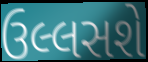
ઉલ્લસશે